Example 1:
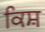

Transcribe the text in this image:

ਕਿਸ਼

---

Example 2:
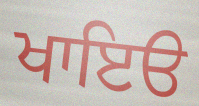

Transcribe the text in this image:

ਖਾਇੳ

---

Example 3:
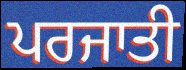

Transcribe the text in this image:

ਪਰਜਾਤੀ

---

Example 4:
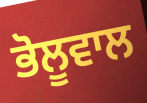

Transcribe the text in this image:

ਭੋਲੂਵਾਲ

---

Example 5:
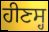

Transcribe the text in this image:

ਹੀਣਸ੍ਹ